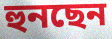
হুনছেন